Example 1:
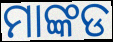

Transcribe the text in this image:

ମାଙ୍କଡ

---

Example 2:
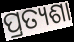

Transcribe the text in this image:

ପ୍ରତ୍ୟଶା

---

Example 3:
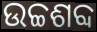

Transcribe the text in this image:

ଉଚ୍ଚଶବ୍ଦ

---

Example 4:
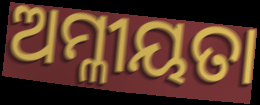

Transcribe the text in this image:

ଅମ୍ଳୀୟତା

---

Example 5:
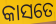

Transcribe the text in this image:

କାସତେ